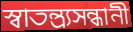
স্বাতন্ত্র্যসন্ধানী